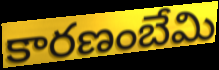
కారణంబేమి